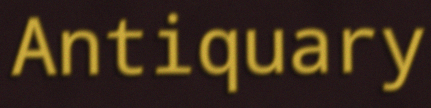
Antiquary